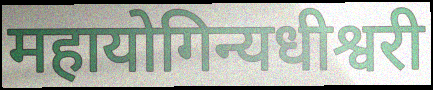
महायोगिन्यधीश्वरी